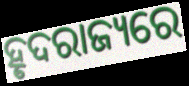
ହୃଦରାଜ୍ୟରେ